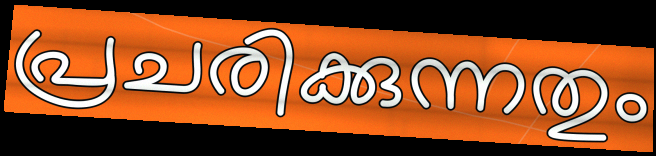
പ്രചരിക്കുന്നതും